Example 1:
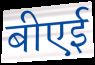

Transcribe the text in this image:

बीएई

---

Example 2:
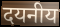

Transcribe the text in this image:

दयनीय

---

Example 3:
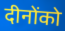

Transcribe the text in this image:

दीनोंको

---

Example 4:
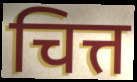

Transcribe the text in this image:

चित्त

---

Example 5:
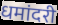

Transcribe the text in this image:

धमांदरी